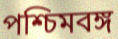
পশ্চিমবঙ্গ